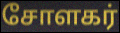
சோளகர்